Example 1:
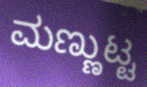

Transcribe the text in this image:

ಮಣ್ಣುಟ್ಟ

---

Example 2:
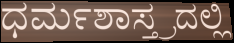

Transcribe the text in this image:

ಧರ್ಮಶಾಸ್ತ್ರದಲ್ಲಿ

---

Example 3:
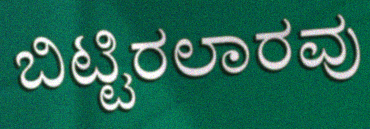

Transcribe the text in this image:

ಬಿಟ್ಟಿರಲಾರವು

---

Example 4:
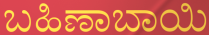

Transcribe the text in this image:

ಬಹಿಣಾಬಾಯಿ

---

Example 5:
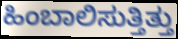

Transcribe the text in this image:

ಹಿಂಬಾಲಿಸುತ್ತಿತ್ತು